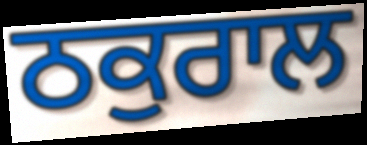
ਠਕੁਰਾਲ